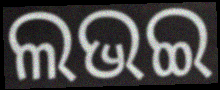
ଲଭଇ